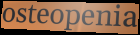
osteopenia